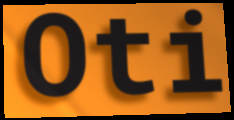
Oti